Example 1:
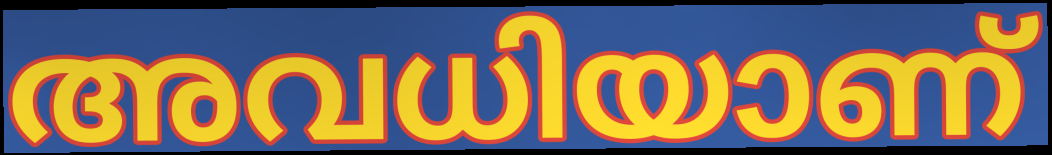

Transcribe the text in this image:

അവധിയാണ്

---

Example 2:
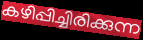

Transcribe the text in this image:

കഴിപ്പിച്ചിരിക്കുന്ന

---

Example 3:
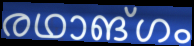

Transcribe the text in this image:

രഥാങ്ഗം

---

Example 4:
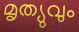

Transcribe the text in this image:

മൃത്യുവും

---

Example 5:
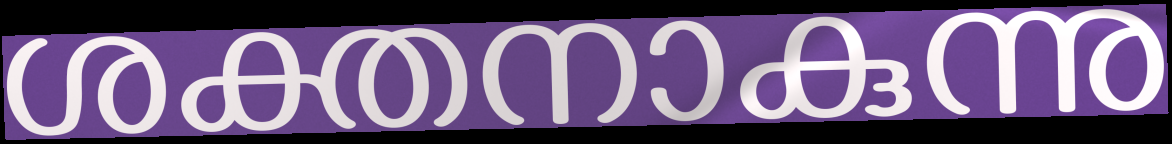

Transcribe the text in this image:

ശക്തനാകുന്നു